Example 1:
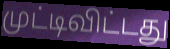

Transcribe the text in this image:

முட்டிவிட்டது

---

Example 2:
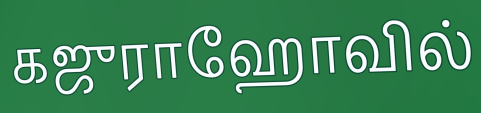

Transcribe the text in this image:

கஜுராஹோவில்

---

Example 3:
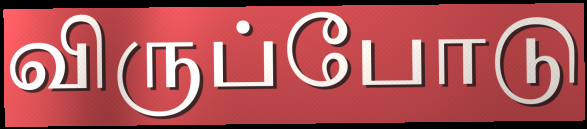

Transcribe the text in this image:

விருப்போடு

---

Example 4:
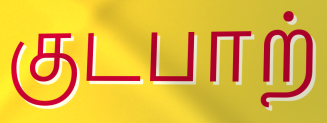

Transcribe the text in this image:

குடபாற்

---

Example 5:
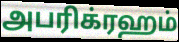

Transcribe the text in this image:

அபரிக்ரஹம்